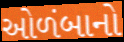
ઓળંબાનો